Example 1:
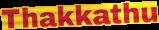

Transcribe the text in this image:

Thakkathu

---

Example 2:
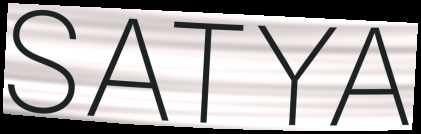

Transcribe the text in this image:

SATYA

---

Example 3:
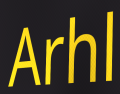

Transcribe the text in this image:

Arhl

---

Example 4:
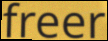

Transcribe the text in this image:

freer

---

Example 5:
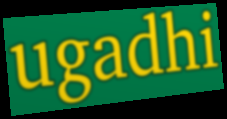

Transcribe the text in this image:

ugadhi